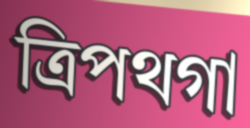
ত্রিপথগা